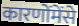
कारणोंमेंसे